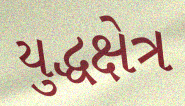
યુદ્ધક્ષેત્ર